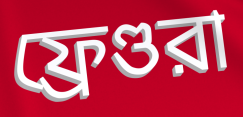
ফ্রেণ্ডরা